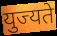
युज्यते